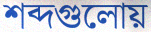
শব্দগুলোয়